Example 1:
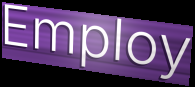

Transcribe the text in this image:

Employ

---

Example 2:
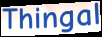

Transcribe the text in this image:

Thingal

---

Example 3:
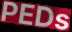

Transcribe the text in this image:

PEDs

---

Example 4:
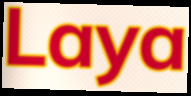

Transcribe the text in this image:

Laya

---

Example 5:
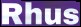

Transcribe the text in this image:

Rhus